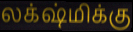
லக்‌ஷ்மிக்கு